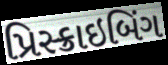
પ્રિસ્ક્રાઇબિંગ